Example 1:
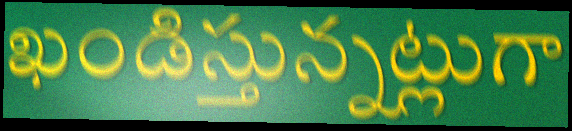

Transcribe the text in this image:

ఖండిస్తున్నట్లుగా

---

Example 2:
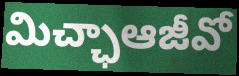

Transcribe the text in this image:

మిచ్ఛాఆజీవో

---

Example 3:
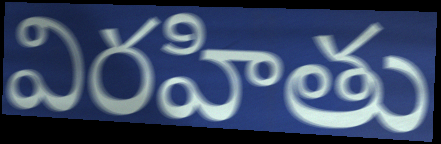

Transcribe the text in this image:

విరహితు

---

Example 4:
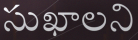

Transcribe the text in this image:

సుఖాలని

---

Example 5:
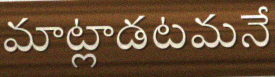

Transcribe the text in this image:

మాట్లాడటమనే